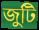
জুটি